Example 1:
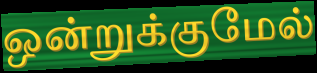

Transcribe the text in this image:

ஒன்றுக்குமேல்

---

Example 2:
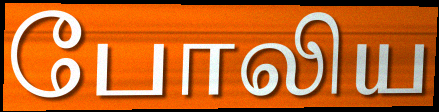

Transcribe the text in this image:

போலிய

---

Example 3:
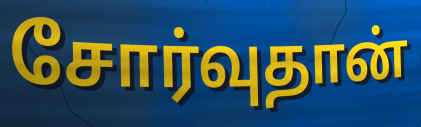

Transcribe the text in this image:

சோர்வுதான்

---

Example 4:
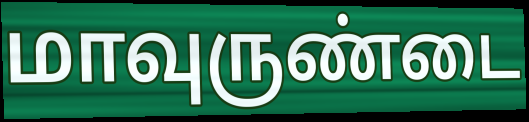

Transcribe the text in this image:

மாவுருண்டை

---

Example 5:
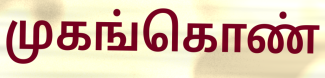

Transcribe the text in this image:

முகங்கொண்